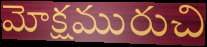
మోక్షమురుచి